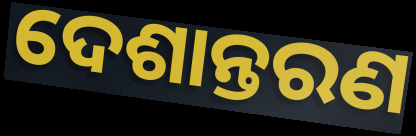
ଦେଶାନ୍ତରଣ